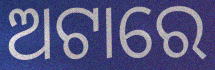
ଅଟାରେ